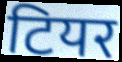
टियर